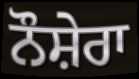
ਨੌਸ਼ੇਰਾ